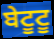
ਬੇਟੂਟੂ